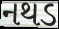
નથડ